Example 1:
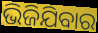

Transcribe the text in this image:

ଭିଜିଯିବାର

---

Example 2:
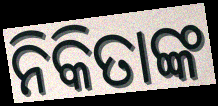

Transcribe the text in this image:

ନିକିତାଙ୍କ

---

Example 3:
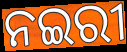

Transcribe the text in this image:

ନଇରୀ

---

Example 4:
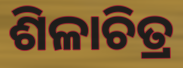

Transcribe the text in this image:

ଶିଳାଚିତ୍ର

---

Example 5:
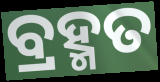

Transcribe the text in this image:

ବ୍ରହ୍ମତ